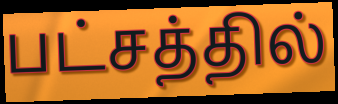
பட்சத்தில்